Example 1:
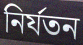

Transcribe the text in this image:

নির্যতন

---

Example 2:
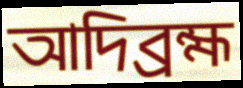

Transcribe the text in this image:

আদিব্রহ্ম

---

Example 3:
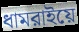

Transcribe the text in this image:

ধামরাইয়ে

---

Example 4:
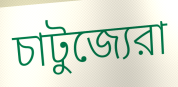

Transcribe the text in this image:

চাটুজ্যেরা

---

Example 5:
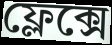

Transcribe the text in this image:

ফ্লেক্সে